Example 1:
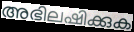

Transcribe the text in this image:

അഭിലഷിക്കുക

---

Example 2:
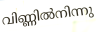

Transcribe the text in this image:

വിണ്ണിൽനിന്നു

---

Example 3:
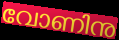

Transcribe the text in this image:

വോണിനു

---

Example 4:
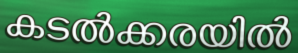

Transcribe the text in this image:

കടൽക്കരയിൽ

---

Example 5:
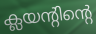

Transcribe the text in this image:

ക്ലയന്റിന്റെ